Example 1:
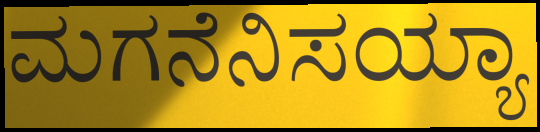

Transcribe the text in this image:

ಮಗನೆನಿಸಯ್ಯಾ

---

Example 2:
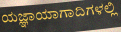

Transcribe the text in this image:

ಯಜ್ಞಾಯಾಗಾದಿಗಳಲ್ಲಿ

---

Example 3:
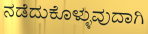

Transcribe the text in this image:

ನಡೆದುಕೊಳ್ಳುವುದಾಗಿ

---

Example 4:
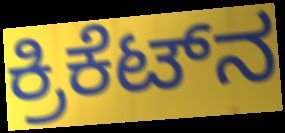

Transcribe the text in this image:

ಕ್ರಿಕೆಟ್‌ನ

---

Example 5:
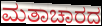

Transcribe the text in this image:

ಮತಾಚಾರದ